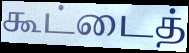
கூட்டைத்